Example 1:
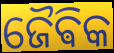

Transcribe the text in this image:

ଜୈଵିକ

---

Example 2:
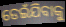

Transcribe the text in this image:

ଡେଇଁଯିବାକୁ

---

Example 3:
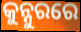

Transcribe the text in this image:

କୁନ୍ନୁରରେ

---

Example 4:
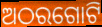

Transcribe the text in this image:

ଅଠରଗୋଟି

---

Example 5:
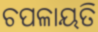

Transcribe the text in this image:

ଚପଳାୟତି